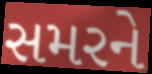
સમરને